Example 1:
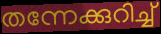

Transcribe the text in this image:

തന്നേക്കുറിച്ച്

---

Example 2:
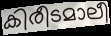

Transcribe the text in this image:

കിരീടമാലീ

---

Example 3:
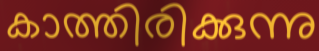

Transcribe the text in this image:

കാത്തിരിക്കുന്നു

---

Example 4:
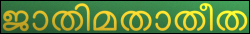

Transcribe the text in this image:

ജാതിമതാതീത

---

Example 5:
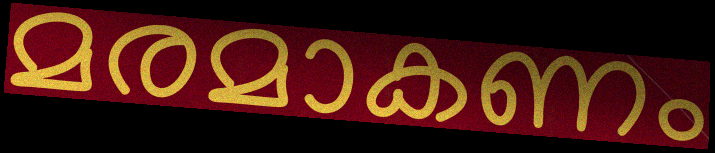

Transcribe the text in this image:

മരമാകണം